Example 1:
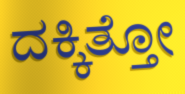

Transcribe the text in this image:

ದಕ್ಕಿತ್ತೋ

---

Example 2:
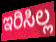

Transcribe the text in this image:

ಇರಿಸಿಲ್ಲ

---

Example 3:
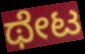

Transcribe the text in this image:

ಥೇಟ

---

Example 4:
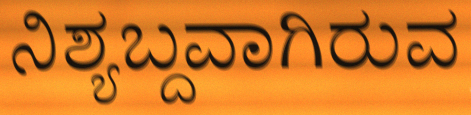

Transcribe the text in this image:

ನಿಶ್ಯಬ್ದವಾಗಿರುವ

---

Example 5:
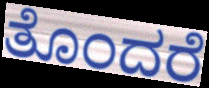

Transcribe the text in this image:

ತೊಂದರೆ